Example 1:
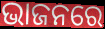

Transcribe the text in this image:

ଭାଜନରେ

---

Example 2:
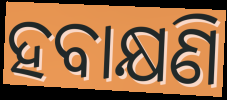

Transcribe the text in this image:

ହବାକ୍ଷଣି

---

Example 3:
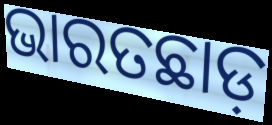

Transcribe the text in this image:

ଭାରତଛାଡ଼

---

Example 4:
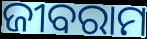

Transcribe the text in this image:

ଜୀବରାମ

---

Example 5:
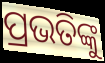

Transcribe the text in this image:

ପ୍ରଭତିଙ୍କୁ